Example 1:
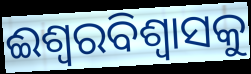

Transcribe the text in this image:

ଈଶ୍ୱରବିଶ୍ଵାସକୁ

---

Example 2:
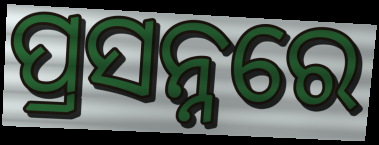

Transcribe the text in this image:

ପ୍ରସନ୍ନରେ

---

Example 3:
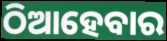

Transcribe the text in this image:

ଠିଆହେବାର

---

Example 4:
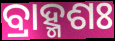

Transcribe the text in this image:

ବ୍ରାହ୍ମଶଃ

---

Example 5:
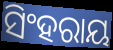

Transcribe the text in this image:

ସିଂହରାୟ